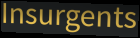
Insurgents